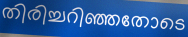
തിരിച്ചറിഞ്ഞതോടെ